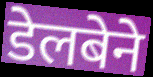
डेलबेने